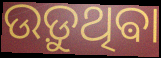
ଉଡ଼ୁଥିଵା